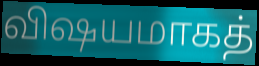
விஷயமாகத்